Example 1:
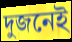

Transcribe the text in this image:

দুজনেই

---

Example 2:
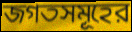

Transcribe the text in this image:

জগতসমূহের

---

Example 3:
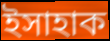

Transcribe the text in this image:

ইসাহাক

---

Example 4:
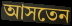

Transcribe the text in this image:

আসতেন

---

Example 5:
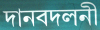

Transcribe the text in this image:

দানবদলনী